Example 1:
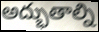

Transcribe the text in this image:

అద్భుతాల్ని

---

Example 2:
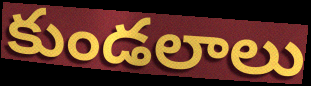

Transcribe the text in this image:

కుండలాలు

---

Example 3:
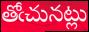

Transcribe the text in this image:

తోఁచునట్లు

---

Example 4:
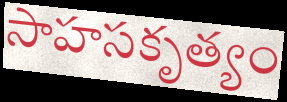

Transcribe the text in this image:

సాహసకృత్యం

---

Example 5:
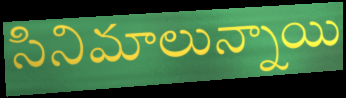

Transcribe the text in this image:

సినిమాలున్నాయి